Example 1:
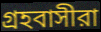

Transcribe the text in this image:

গ্রহবাসীরা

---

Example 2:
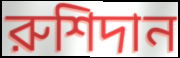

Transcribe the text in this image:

রুশিদান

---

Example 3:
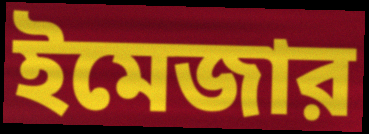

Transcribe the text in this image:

ইমেজার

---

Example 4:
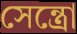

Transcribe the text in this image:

সেন্ত্রো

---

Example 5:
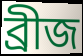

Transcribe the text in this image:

ব্রীজ